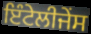
ਇੰਟੇਲੀਜੇੰਸ